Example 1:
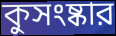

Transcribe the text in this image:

কুসংষ্কার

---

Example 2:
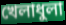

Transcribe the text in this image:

খেলাধুলা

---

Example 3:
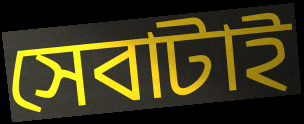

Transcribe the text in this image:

সেবাটাই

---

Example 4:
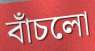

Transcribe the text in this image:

বাঁচলো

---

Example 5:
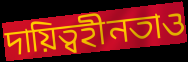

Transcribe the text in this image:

দায়িত্বহীনতাও